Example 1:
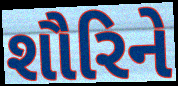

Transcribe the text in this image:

શૌરિને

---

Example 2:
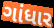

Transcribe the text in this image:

ગાંધાર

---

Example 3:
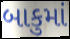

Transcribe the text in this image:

બાકુમાં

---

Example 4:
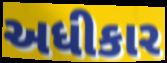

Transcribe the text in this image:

અધીકાર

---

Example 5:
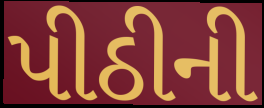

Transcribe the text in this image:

પીઠીની